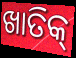
ଖାତିକ୍